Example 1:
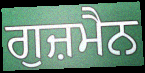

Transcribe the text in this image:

ਗੁਜ਼ਮੈਨ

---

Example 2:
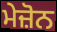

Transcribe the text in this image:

ਮੇਜ਼ੋਨ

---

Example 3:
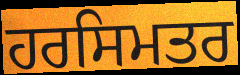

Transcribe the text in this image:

ਹਰਸਿਮਤਰ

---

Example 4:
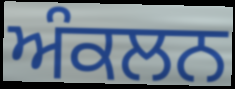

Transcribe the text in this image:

ਅੰਕਲਨ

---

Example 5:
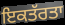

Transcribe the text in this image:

ਇਕਤੱਰਤਾ